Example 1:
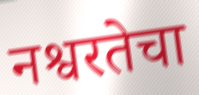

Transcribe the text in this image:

नश्वरतेचा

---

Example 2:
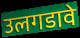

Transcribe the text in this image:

उलगडावे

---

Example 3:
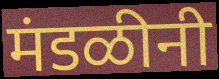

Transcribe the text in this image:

मंडळीनी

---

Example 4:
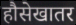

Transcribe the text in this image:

हौसेखातर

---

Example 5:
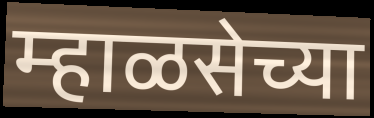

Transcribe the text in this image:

म्हाळसेच्या